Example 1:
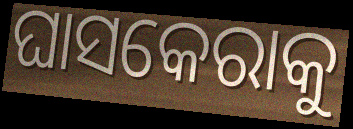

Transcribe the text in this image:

ଘାସକେରାକୁ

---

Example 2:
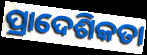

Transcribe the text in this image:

ପ୍ରାଦେଶିକତା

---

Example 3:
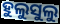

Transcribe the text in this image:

ହୁଲୁସୁଲୁ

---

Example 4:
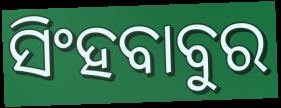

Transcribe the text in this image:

ସିଂହବାବୁର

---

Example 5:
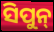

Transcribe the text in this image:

ସିପୁନ୍